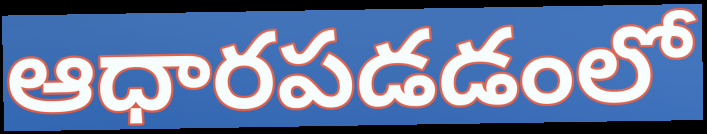
ఆధారపడడంలో